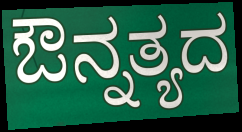
ಔನ್ನತ್ಯದ